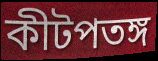
কীটপতঙ্গ